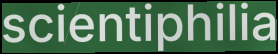
scientiphilia